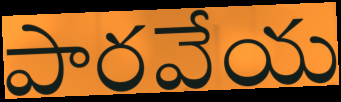
పారవేయ